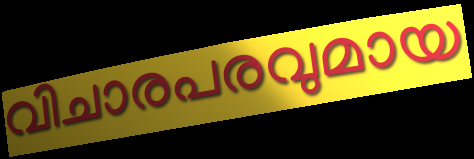
വിചാരപരവുമായ